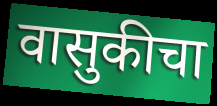
वासुकीचा